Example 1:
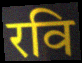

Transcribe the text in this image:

रवि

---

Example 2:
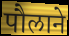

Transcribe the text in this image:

पौलाने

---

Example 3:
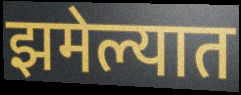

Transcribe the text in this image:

झमेल्यात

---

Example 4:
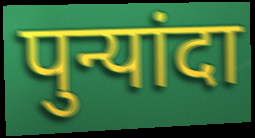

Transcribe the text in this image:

पुन्यांदा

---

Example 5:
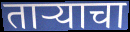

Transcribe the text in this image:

ताऱ्याचा